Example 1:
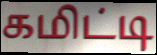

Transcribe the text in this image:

கமிட்டி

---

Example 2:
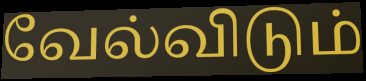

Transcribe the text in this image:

வேல்விடும்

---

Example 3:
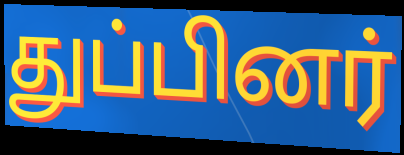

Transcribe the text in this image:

துப்பினர்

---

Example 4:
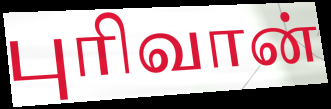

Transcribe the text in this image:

புரிவான்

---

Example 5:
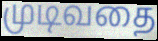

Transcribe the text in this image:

முடிவதை